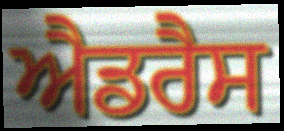
ਐਡਰੈਸ